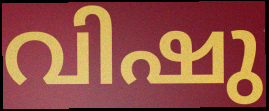
വിഷു